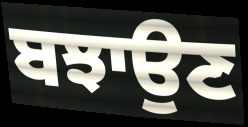
ਬਝਾਉਣ